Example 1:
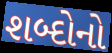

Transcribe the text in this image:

શબ્દોનો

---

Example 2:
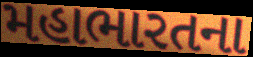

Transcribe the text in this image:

મહાભારતના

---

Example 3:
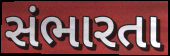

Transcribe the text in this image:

સંભારતા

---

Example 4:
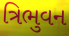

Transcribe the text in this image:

ત્રિભુવન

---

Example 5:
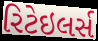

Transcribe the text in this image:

રિટેઇલર્સ